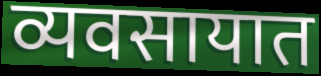
व्यवसायात